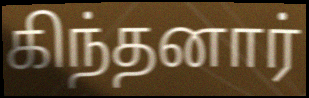
கிந்தனார்